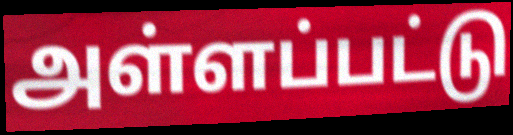
அள்ளப்பட்டு